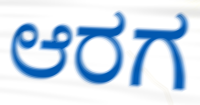
ಆರಗ